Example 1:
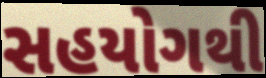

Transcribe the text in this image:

સહયોગથી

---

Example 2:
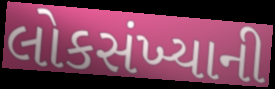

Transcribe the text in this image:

લોકસંખ્યાની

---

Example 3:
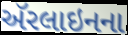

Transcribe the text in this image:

ઍરલાઇનના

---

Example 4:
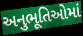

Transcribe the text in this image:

અનુભૂતિઓમાં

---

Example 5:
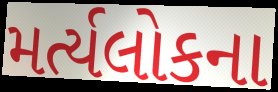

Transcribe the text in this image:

મર્ત્યલોકના